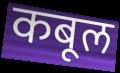
कबूल